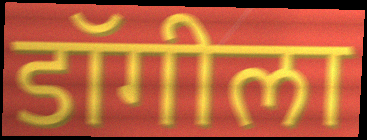
डॉगीला